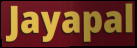
Jayapal